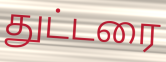
துட்டரை